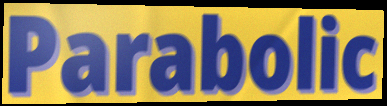
Parabolic